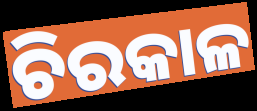
ଚିରକାଳ